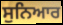
ਸੁਨਿਆਰ